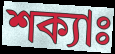
শক্যাঃ